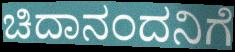
ಚಿದಾನಂದನಿಗೆ